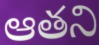
ఆతని